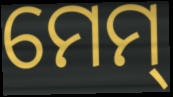
ମେମ୍